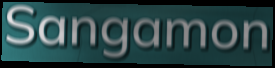
Sangamon